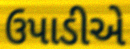
ઉપાડીએ